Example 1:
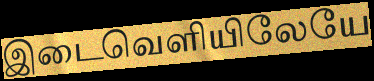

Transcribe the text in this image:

இடைவெளியிலேயே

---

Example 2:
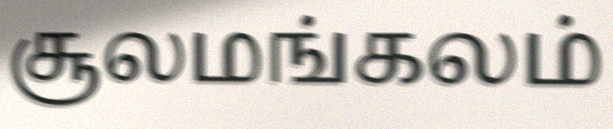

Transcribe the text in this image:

சூலமங்கலம்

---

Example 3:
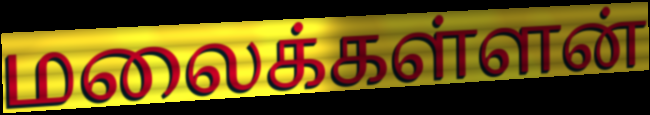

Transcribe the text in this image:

மலைக்கள்ளன்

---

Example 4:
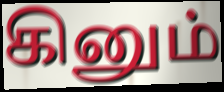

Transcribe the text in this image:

கினும்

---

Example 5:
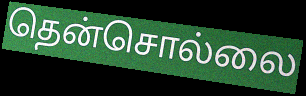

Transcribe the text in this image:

தென்சொல்லை